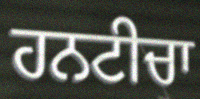
ਹਨਟੀਚਾ